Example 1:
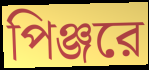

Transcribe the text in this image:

পিঞ্জরে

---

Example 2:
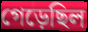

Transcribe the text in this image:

গেড়েছিল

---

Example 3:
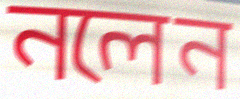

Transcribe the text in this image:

নলেন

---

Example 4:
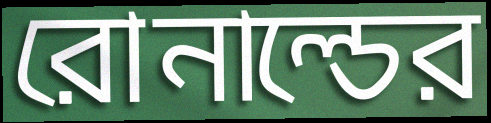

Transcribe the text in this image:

রোনাল্ডের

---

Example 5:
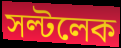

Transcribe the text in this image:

সল্টলেক